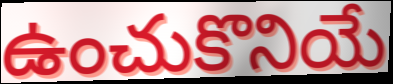
ఉంచుకొనియే